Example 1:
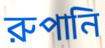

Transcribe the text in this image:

রুপানি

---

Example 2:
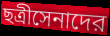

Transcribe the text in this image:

ছত্রীসেনাদের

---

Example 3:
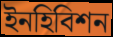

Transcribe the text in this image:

ইনহিবিশন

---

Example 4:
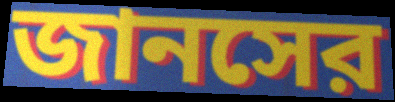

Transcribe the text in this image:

জানসের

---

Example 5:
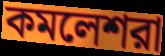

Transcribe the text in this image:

কমলেশরা